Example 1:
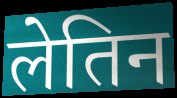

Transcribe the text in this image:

लेतिन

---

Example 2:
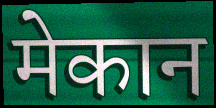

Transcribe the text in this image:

मेकान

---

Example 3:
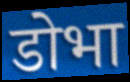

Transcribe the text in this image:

डोभा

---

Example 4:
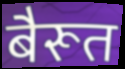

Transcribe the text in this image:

बैरूत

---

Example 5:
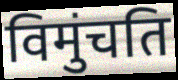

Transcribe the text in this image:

विमुंचति